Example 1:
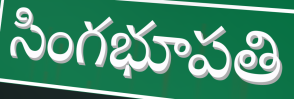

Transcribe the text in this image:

సింగభూపతి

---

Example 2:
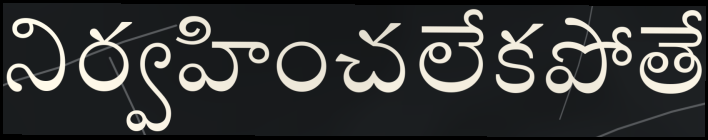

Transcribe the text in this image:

నిర్వహించలేకపోతే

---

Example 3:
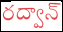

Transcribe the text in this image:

రద్వాన్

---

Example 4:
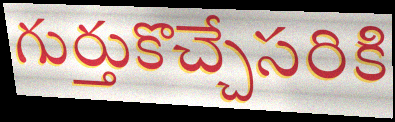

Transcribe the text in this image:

గుర్తుకొచ్చేసరికి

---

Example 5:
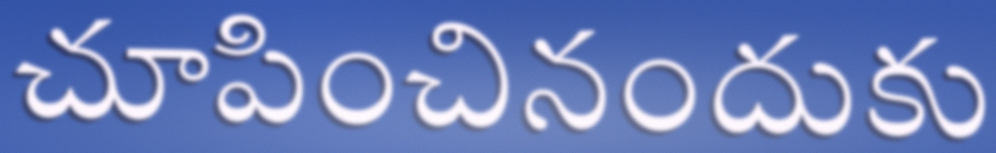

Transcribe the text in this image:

చూపించినందుకు